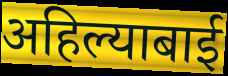
अहिल्याबाई